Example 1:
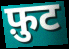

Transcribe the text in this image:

फ़ुट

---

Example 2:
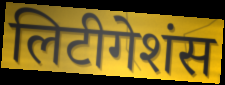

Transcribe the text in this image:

लिटीगेशंस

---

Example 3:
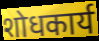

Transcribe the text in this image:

शोधकार्य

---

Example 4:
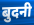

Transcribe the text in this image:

बुदनी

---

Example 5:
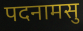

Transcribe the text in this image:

पदनामसु